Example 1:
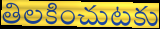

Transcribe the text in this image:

తిలకించుటకు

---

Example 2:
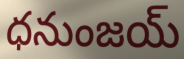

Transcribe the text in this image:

ధనుంజయ్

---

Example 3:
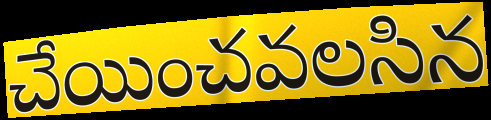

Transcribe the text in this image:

చేయించవలసిన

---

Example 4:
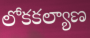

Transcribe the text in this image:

లోకకల్యాణ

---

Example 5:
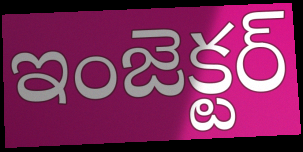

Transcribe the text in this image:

ఇంజెక్టర్